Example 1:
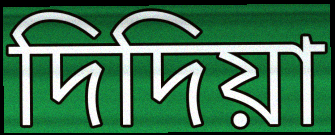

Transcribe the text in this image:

দিদিয়া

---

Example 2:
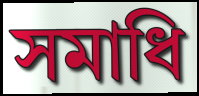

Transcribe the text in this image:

সমাধি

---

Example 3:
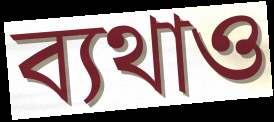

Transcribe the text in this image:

ব্যথাও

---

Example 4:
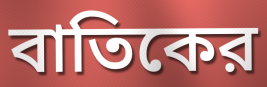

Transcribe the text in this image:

বাতিকের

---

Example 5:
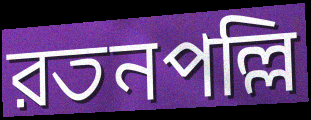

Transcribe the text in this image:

রতনপল্লি